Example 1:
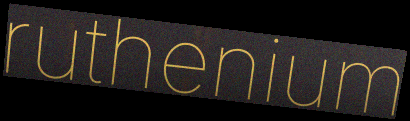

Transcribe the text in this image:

ruthenium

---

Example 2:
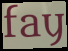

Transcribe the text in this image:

fay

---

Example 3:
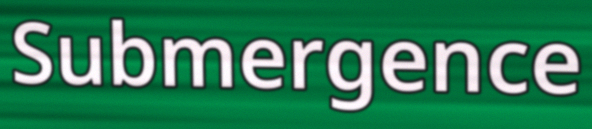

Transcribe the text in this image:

Submergence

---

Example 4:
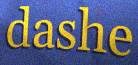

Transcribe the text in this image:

dashe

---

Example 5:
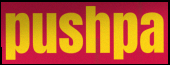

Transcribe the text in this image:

pushpa